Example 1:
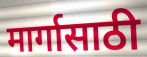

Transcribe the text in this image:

मार्गासाठी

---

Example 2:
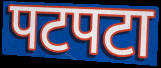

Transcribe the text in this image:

पटपटा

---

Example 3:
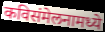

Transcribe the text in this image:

कविसंमेलनामध्ये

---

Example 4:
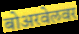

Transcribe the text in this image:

बोअरवेलवर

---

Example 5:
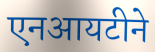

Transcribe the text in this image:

एनआयटीने